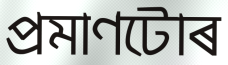
প্ৰমাণটোৰ